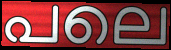
പലെ